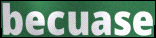
becuase